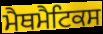
ਮੈਥਮੈਟਿਕਸ